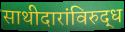
साथीदारांविरुद्ध